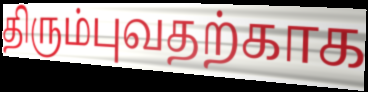
திரும்புவதற்காக